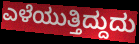
ಎಳೆಯುತ್ತಿದ್ದುದು